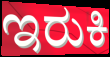
ಇರುಕಿ